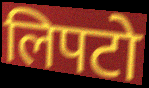
लिपटो